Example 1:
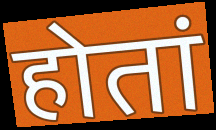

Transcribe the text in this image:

होतां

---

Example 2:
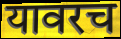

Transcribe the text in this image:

यावरच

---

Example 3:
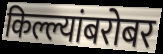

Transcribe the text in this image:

किल्ल्यांबरोबर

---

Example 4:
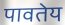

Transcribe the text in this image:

पावतेय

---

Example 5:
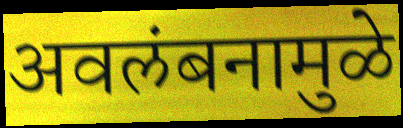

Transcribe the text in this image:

अवलंबनामुळे